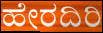
ಹೇರದಿರಿ